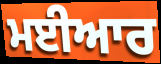
ਮਈਆਰ